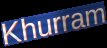
Khurram